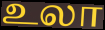
உலா